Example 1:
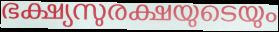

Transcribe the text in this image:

ഭക്ഷ്യസുരക്ഷയുടെയും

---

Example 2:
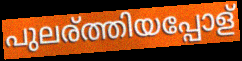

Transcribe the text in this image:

പുലര്ത്തിയപ്പോള്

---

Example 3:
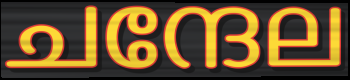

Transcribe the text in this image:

ചന്ദേല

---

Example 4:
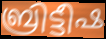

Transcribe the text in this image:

ബ്രിട്ടീഷ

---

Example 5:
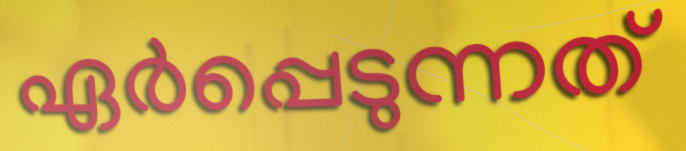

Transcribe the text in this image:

ഏർപ്പെടുന്നത്